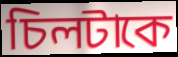
চিলটাকে